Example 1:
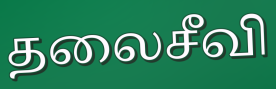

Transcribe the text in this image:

தலைசீவி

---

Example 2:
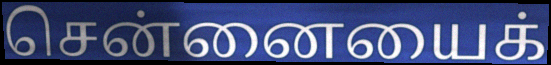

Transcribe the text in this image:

சென்னையைக்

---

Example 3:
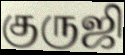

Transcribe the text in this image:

குருஜி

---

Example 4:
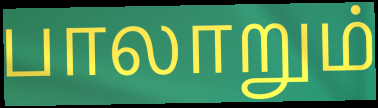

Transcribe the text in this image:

பாலாறும்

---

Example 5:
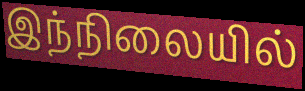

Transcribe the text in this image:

இந்நிலையில்